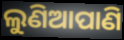
ଲୁଣିଆପାଣି